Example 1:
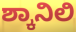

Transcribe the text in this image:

ಶ್ಕಾನಿಲಿ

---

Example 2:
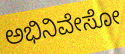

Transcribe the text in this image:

ಅಭಿನಿವೇಸೋ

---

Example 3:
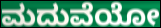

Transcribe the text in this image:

ಮದುವೆಯೋ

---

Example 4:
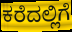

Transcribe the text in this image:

ಕರೆದಲ್ಲಿಗೆ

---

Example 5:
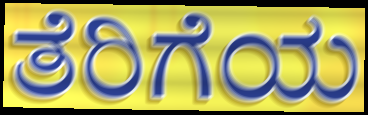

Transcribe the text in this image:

ತೆರಿಗೆಯ